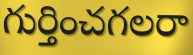
గుర్తించగలరా